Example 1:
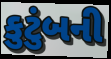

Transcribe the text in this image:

કુટુંબની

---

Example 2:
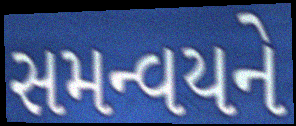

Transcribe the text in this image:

સમન્વયને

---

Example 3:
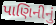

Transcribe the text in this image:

પાણિનીનું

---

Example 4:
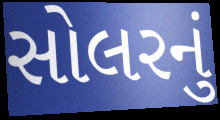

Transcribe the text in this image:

સોલરનું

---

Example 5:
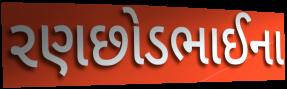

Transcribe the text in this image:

રણછોડભાઈના